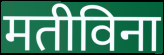
मतीविना